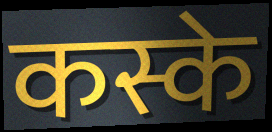
कस्के